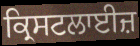
ਕ੍ਰਿਸਟਲਾਈਜ਼